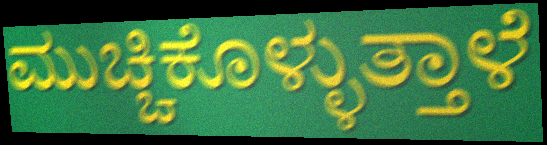
ಮುಚ್ಚಿಕೊಳ್ಳುತ್ತಾಳೆ